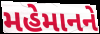
મહેમાનને